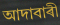
আদাবাৰী